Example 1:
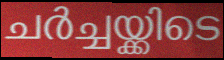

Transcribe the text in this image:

ചർച്ചയ്ക്കിടെ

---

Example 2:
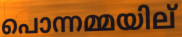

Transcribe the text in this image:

പൊന്നമ്മയില്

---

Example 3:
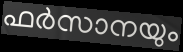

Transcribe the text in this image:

ഫർസാനയും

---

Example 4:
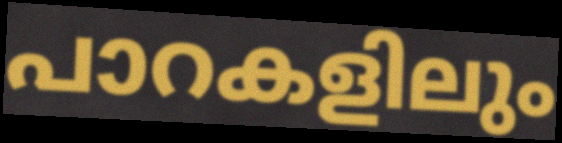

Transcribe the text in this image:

പാറകളിലും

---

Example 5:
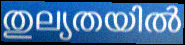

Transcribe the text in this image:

തുല്യതയിൽ